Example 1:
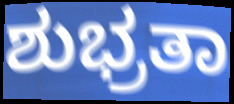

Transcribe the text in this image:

ಶುಭ್ರತಾ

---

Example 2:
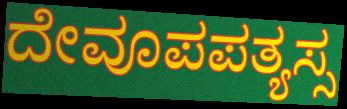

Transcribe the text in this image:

ದೇವೂಪಪತ್ಯಸ್ಸ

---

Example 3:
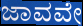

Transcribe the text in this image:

ಜಾವವೇ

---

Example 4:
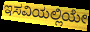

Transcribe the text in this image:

ಇಸವಿಯಲ್ಲಿಯೇ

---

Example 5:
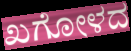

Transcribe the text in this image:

ಖಗೋಳದ